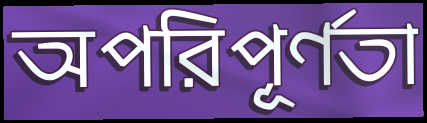
অপরিপূর্ণতা